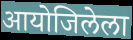
आयोजिलेला